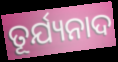
ତୂର୍ଯ୍ୟନାଦ